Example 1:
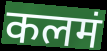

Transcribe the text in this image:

कलमं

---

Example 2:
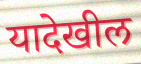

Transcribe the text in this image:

यादेखील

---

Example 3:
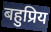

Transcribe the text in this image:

बहुप्रिय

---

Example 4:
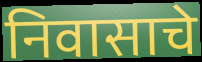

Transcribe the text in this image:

निवासाचे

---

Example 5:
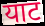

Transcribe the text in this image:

याट